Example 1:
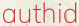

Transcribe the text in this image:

authid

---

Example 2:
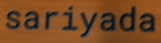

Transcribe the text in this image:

sariyada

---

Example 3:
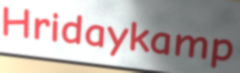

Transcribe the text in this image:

Hridaykamp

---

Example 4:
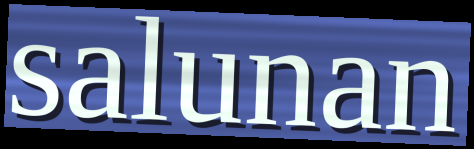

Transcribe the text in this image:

salunan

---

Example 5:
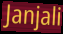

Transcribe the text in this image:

Janjali